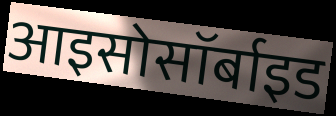
आइसोसॉर्बाइड